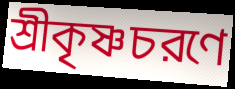
শ্রীকৃষ্ণচরণে